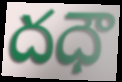
దధౌ